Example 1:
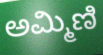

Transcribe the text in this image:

ಅಮ್ಮಿಣಿ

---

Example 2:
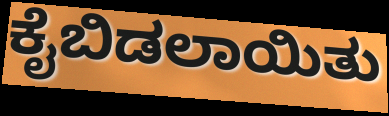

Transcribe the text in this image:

ಕೈಬಿಡಲಾಯಿತು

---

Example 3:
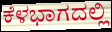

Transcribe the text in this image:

ಕೆಳಭಾಗದಲ್ಲಿ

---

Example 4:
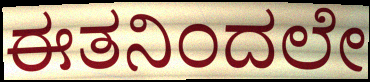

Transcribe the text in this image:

ಈತನಿಂದಲೇ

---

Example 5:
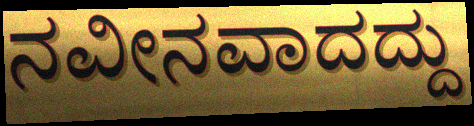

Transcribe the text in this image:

ನವೀನವಾದದ್ದು